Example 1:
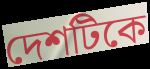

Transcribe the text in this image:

দেশটিকে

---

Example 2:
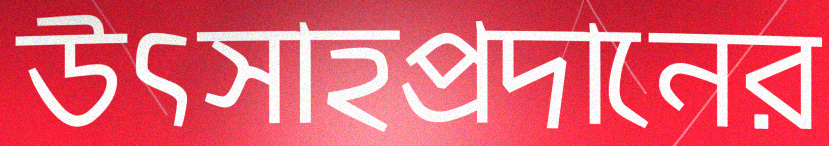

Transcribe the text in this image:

উৎসাহপ্রদানের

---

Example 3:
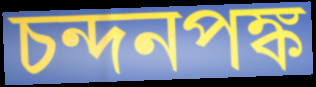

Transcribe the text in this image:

চন্দনপঙ্ক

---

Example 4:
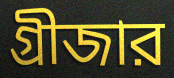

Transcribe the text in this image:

গ্রীজার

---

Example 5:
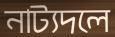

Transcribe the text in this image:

নাট্যদলে